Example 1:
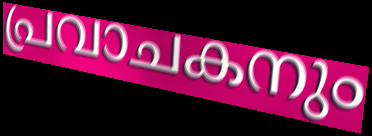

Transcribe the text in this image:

പ്രവാചകനും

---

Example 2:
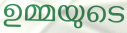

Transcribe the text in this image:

ഉമ്മയുടെ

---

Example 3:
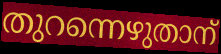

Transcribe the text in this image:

തുറന്നെഴുതാന്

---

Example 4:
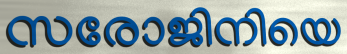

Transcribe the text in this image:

സരോജിനിയെ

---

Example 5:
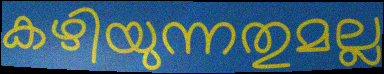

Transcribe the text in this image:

കഴിയുന്നതുമല്ല